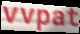
vvpat